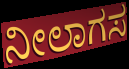
ನೀಲಾಗಸ